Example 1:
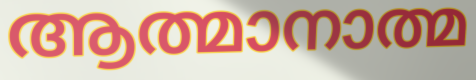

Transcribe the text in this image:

ആത്മാനാത്മ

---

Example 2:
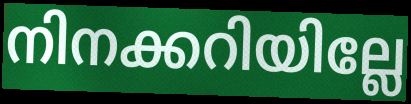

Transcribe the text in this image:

നിനക്കറിയില്ലേ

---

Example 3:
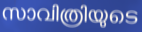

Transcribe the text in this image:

സാവിത്രിയുടെ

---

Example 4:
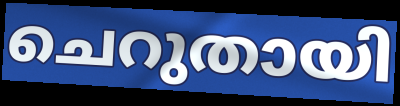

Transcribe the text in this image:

ചെറുതായി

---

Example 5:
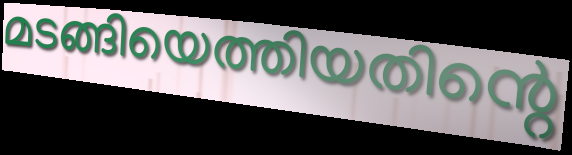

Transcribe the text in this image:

മടങ്ങിയെത്തിയതിന്റെ